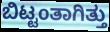
ಬಿಟ್ಟಂತಾಗಿತ್ತು